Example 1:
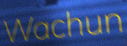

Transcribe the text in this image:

Wachun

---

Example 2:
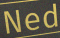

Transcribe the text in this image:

Ned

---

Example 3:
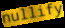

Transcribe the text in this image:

nullify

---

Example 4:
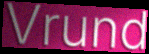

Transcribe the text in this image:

Vrund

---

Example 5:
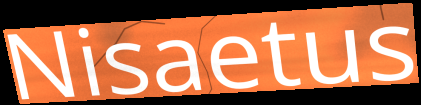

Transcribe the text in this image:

Nisaetus